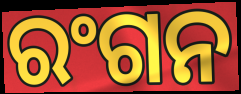
ରଂଗନ